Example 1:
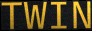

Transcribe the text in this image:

TWIN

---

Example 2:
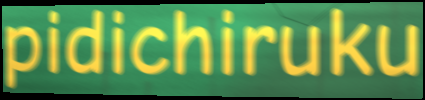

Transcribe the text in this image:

pidichiruku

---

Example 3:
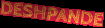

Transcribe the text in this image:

DESHPANDE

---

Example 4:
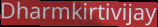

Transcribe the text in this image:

Dharmkirtivijay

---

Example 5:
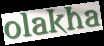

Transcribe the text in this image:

olakha